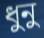
ধুনু